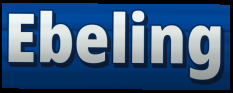
Ebeling